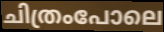
ചിത്രംപോലെ